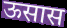
ऊसास